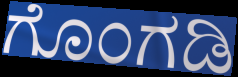
ಗೊಂಗಡಿ